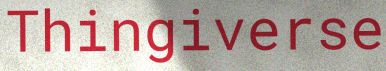
Thingiverse